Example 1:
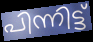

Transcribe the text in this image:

പിന്നിട്ട്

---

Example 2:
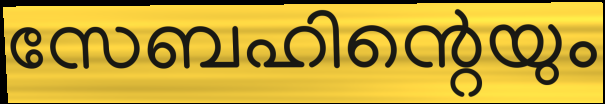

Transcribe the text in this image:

സേബഹിന്റെയും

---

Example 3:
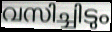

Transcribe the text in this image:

വസിച്ചിടും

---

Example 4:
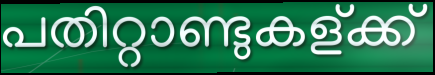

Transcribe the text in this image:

പതിറ്റാണ്ടുകള്ക്ക്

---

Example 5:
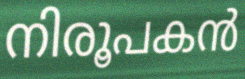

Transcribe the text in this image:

നിരൂപകൻ